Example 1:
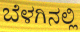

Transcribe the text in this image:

ಬೆಳಗಿನಲ್ಲಿ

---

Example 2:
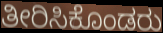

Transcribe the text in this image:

ತೀರಿಸಿಕೊಂಡರು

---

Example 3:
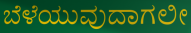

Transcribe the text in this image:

ಬೆಳೆಯುವುದಾಗಲೀ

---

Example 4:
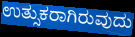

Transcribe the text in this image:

ಉತ್ಸುಕರಾಗಿರುವುದು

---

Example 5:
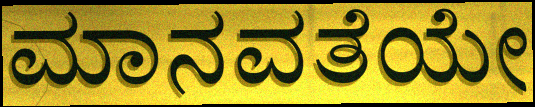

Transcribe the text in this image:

ಮಾನವತೆಯೇ